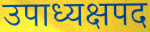
उपाध्यक्षपद